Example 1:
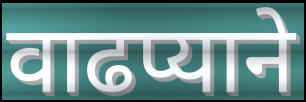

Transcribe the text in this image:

वाढप्याने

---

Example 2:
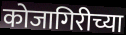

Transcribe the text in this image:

कोजागिरीच्या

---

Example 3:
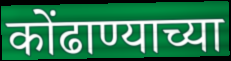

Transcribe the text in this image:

कोंढाण्याच्या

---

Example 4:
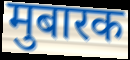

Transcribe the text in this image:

मुबारक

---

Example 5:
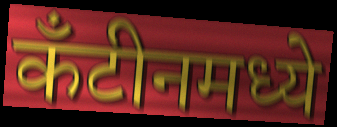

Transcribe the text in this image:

कँटीनमध्ये